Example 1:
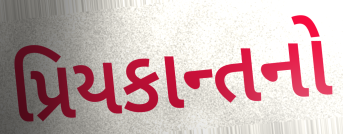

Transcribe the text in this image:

પ્રિયકાન્તનો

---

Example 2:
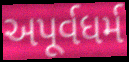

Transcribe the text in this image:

અપૂર્વધર્મ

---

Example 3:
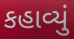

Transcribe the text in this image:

કહાવ્યું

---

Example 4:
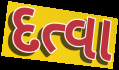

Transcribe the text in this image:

દત્વા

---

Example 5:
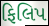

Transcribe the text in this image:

ફિલિપ